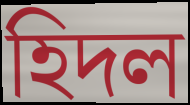
হিদল